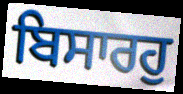
ਬਿਸਾਰਹੁ